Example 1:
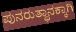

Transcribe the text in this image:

ಪುನರುತ್ಥಾನಕ್ಕಾಗಿ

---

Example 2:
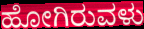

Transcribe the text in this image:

ಹೋಗಿರುವಳು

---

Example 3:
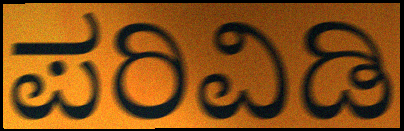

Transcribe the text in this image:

ಪರಿವಿಡಿ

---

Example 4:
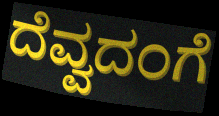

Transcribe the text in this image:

ದೆವ್ವದಂಗೆ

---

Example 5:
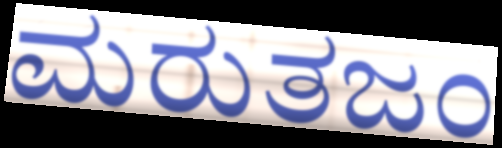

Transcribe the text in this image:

ಮರುತಜಂ